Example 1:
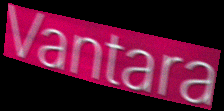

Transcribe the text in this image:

Vantara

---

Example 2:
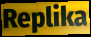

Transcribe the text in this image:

Replika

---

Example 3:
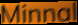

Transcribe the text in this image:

Minnal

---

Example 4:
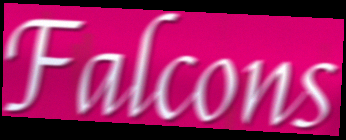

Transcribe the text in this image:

Falcons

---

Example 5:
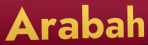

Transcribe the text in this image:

Arabah